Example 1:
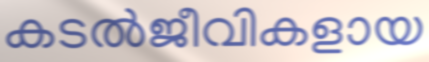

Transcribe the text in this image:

കടൽജീവികളായ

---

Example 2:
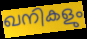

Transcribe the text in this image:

ഖനികളും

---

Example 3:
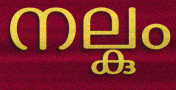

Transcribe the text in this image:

നല്കും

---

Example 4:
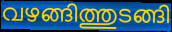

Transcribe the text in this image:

വഴങ്ങിത്തുടങ്ങി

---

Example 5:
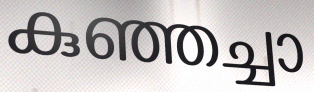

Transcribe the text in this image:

കുഞ്ഞച്ചാ